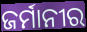
ଜର୍ମାନୀର